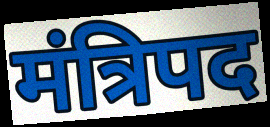
मंत्रिपद